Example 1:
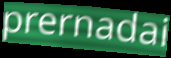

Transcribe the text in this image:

prernadai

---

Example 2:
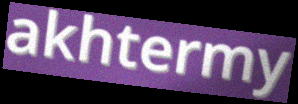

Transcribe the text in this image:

akhtermy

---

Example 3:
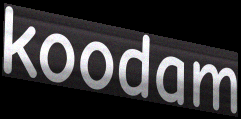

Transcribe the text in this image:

koodam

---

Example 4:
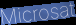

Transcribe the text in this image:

Microsat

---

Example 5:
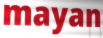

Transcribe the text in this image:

mayan